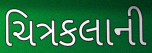
ચિત્રકલાની